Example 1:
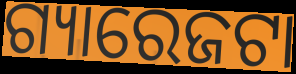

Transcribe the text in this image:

ଗ୍ୟାରେଜଟା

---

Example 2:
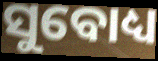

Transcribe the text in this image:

ସୁବୋଧ୍ୟ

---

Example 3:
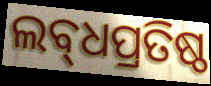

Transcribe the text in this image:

ଲବ୍‌ଧପ୍ରତିଷ୍ଠ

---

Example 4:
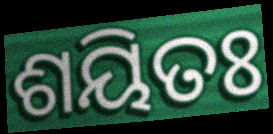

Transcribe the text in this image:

ଶୟିତଃ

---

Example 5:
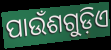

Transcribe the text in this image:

ପାଉଁଶଗୁଡ଼ିଏ